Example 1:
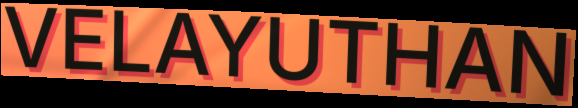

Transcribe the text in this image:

VELAYUTHAN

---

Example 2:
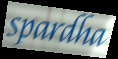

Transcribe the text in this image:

spardha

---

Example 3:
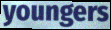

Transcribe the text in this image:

youngers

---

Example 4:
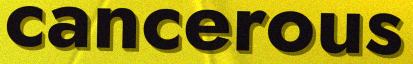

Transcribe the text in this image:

cancerous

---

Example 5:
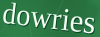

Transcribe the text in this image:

dowries